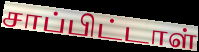
சாப்பிட்டாள்